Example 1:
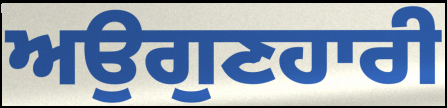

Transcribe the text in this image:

ਅਉਗੁਣਹਾਰੀ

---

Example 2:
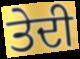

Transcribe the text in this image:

ਤੇਦੀ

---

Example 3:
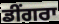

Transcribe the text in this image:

ਡੀਂਗਰਾ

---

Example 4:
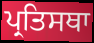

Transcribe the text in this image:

ਪ੍ਰਤਿਸਥਾ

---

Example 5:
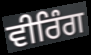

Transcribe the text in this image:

ਵੀਰਿੰਗ